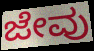
ಜೇವು